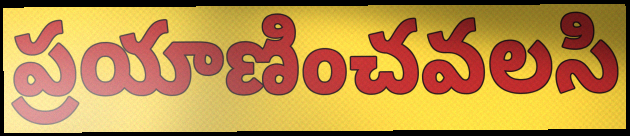
ప్రయాణించవలసి